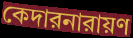
কেদারনারায়ণ